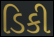
ડિકી